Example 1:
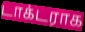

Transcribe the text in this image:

டாக்டராக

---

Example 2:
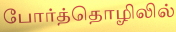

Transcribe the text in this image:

போர்த்தொழிலில்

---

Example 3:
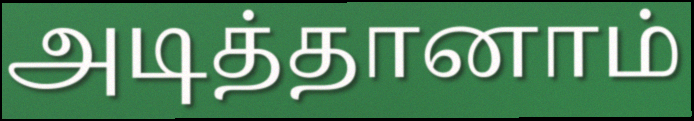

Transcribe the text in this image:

அடித்தானாம்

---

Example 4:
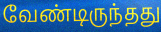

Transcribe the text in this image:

வேண்டிருந்தது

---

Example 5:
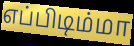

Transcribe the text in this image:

எப்பிடிம்மா